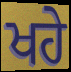
ਖਹੇ